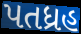
પતધ્રહ